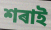
শৰাই